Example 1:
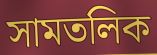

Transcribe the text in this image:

সামতলিক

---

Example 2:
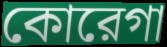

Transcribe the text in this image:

কোরেগা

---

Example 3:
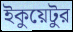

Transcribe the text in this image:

ইকুয়েটুর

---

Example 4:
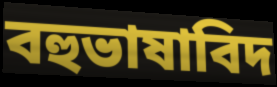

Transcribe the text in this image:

বহুভাষাবিদ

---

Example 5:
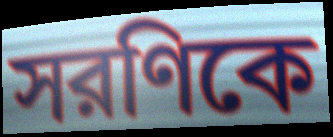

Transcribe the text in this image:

সরণিকে